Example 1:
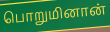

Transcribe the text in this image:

பொறுமினான்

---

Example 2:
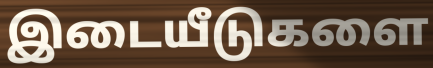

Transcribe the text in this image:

இடையீடுகளை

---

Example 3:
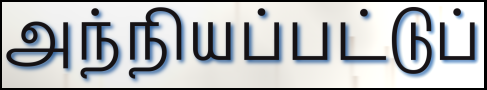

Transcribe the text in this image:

அந்நியப்பட்டுப்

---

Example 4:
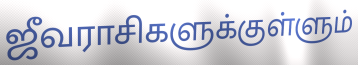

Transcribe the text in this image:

ஜீவராசிகளுக்குள்ளும்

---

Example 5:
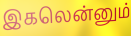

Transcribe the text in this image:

இகலென்னும்